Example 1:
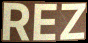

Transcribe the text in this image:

REZ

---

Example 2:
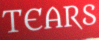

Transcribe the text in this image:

TEARS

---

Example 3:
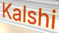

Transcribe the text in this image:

Kalshi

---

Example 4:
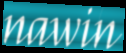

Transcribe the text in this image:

nawin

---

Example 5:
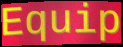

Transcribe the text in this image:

Equip